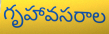
గృహావసరాల